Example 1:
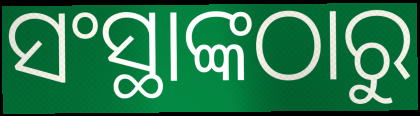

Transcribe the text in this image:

ସଂସ୍ଥାଙ୍କଠାରୁ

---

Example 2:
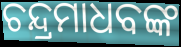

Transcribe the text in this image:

ଚନ୍ଦ୍ରମାଧବଙ୍କ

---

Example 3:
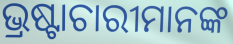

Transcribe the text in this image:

ଭ୍ରଷ୍ଟାଚାରୀମାନଙ୍କ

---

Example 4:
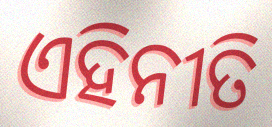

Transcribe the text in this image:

ଏହିନୀତି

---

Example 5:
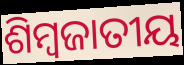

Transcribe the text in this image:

ଶିମ୍ବଜାତୀୟ